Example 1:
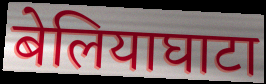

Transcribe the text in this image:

बेलियाघाटा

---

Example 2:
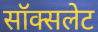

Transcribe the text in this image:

सॉक्सलेट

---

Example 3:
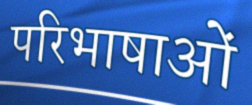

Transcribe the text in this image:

परिभाषाओं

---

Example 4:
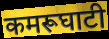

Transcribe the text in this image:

कमरूघाटी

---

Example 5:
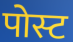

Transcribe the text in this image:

पोस्‍ट